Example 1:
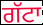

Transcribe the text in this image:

ਗੱਟਾ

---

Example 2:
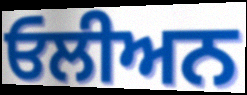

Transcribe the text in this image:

ਓਲੀਅਨ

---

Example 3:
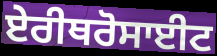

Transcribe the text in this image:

ਏਰੀਥਰੋਸਾਈਟ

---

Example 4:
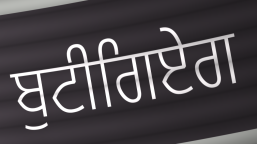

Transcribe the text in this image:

ਬੁਟੀਗਿਏਗ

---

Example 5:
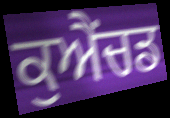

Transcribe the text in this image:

ਕੁਐਂਚਡ